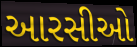
આરસીઓ